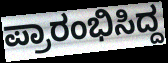
ಪ್ರಾರಂಭಿಸಿದ್ದ